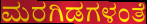
ಮರಗಿಡಗಳಂತೆ